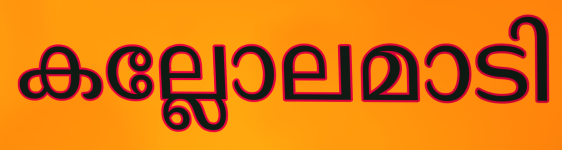
കല്ലോലമാടി